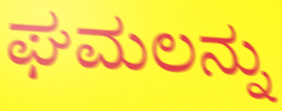
ಘಮಲನ್ನು